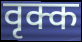
वृक्क